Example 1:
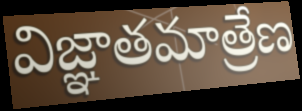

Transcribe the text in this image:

విజ్ఞాతమాత్రేణ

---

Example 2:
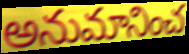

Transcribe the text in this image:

అనుమానించ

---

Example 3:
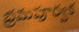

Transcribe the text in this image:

భ్రమపూర్వక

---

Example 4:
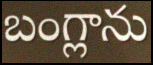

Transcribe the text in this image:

బంగ్లాను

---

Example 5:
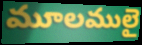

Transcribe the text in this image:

మూలములై